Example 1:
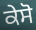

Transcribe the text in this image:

ਕੇਸੋ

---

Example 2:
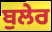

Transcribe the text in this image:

ਬੁਲੇਰ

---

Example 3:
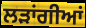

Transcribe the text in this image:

ਲੜਾਂਗੀਆਂ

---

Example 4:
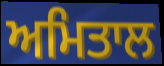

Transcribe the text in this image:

ਅਮਿਤਾਲ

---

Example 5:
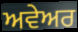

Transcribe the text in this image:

ਅਵੇਅਰ